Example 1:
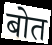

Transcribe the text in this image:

बोत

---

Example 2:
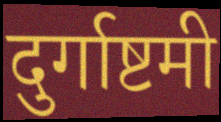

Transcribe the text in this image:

दुर्गाष्टमी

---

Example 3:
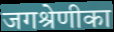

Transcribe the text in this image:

जगश्रेणीका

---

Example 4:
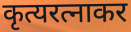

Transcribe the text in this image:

कृत्यरत्नाकर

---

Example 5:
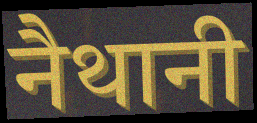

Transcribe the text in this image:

नैथानी